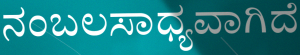
ನಂಬಲಸಾಧ್ಯವಾಗಿದೆ